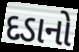
દડાનો